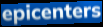
epicenters